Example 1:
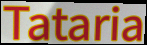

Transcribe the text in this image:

Tataria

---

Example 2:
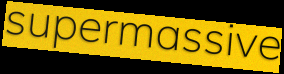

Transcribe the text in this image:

supermassive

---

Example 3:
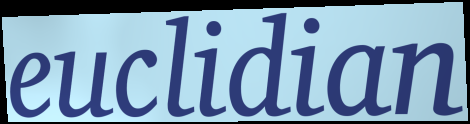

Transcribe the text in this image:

euclidian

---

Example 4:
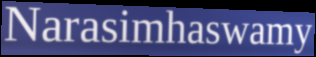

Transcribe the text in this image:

Narasimhaswamy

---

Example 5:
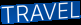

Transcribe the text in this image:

TRAVEL